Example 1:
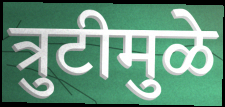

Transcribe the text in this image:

त्रुटीमुळे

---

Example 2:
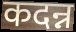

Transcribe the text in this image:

कदन्न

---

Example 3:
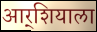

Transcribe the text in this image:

आर्शियाला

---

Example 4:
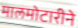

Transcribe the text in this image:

मालमोटारीने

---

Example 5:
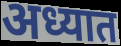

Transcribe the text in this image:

अध्यात